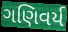
ગણિવર્ય